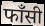
फाँसी